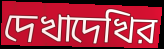
দেখাদেখির